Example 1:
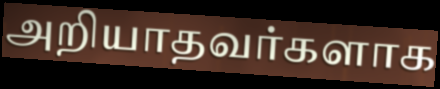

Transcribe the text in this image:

அறியாதவர்களாக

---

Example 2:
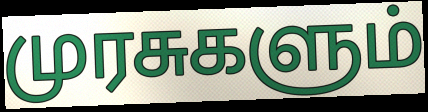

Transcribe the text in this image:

முரசுகளும்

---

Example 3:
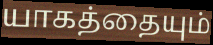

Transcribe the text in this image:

யாகத்தையும்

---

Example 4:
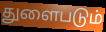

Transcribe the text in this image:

துளைபடும்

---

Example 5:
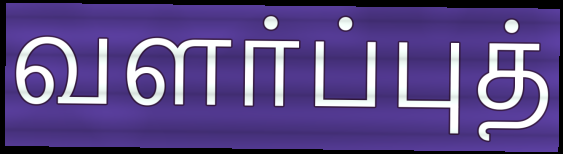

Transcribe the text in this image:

வளர்ப்புத்